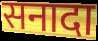
सनादा